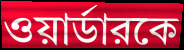
ওয়ার্ডারকে